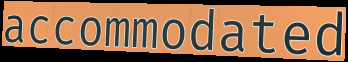
accommodated